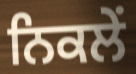
ਨਿਕਲੇਂ